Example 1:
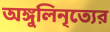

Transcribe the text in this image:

অঙ্গুলিনৃত্যের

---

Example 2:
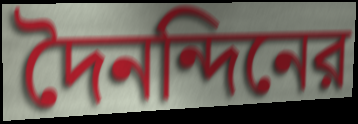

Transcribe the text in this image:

দৈনন্দিনের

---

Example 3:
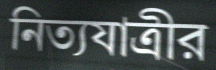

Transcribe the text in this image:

নিত্যযাত্রীর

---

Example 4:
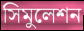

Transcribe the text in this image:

সিমুলেশন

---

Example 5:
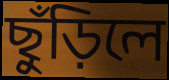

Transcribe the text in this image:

ছুঁড়িলে